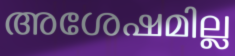
അശേഷമില്ല